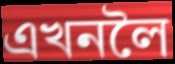
এখনলৈ